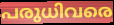
പരുധിവരെ